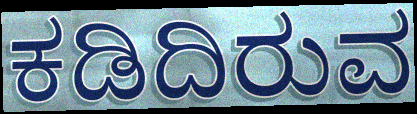
ಕಡಿದಿರುವ